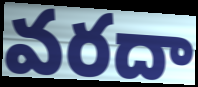
వరదా